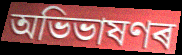
অভিভাষণৰ